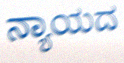
ನ್ಯಾಯದ